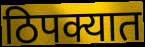
ठिपक्यात